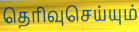
தெரிவுசெய்யும்